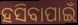
ହସିବାପାଇଁ